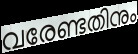
വരേണ്ടതിനും